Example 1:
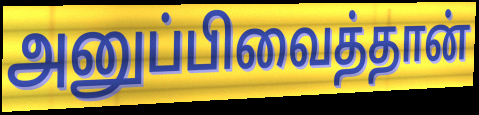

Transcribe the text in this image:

அனுப்பிவைத்தான்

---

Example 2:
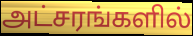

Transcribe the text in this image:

அட்சரங்களில்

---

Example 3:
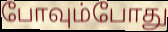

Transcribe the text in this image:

போவும்போது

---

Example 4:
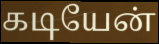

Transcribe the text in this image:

கடியேன்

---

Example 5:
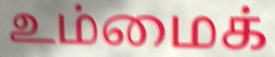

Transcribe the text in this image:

உம்மைக்